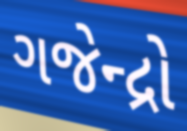
ગજેન્દ્રો